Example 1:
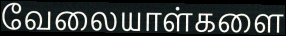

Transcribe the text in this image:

வேலையாள்களை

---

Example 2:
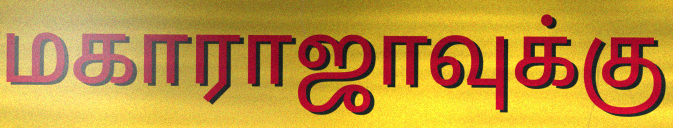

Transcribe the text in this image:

மகாராஜாவுக்கு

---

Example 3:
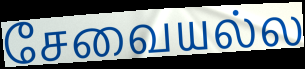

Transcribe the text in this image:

சேவையல்ல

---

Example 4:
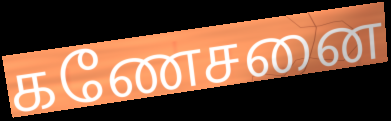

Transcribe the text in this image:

கணேசனை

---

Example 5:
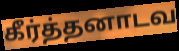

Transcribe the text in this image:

கீர்த்தனாடவ